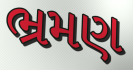
ભ્રમણ